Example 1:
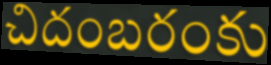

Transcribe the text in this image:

చిదంబరంకు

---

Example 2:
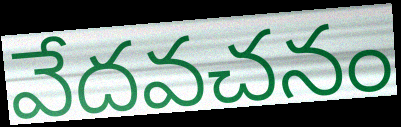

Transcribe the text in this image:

వేదవచనం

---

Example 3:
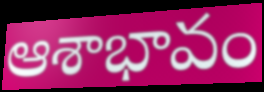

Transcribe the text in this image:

ఆశాభావం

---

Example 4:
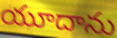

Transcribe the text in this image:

యూదాను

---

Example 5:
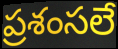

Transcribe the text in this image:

ప్రశంసలే